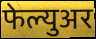
फेल्युअर